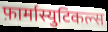
फ़ार्मास्युटिकल्स